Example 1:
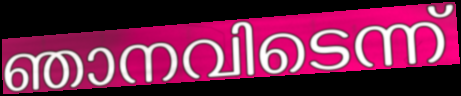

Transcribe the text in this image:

ഞാനവിടെന്ന്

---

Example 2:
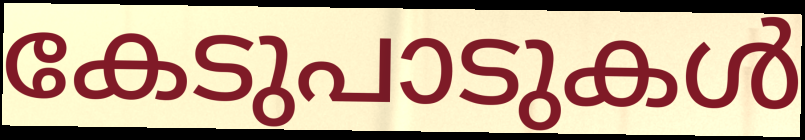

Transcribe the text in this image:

കേടുപാടുകൾ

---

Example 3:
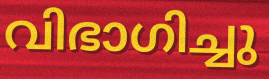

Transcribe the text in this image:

വിഭാഗിച്ചു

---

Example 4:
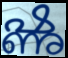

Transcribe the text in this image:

ഷ്ണു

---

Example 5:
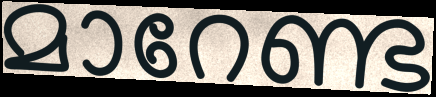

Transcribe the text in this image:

മാറേണ്ട